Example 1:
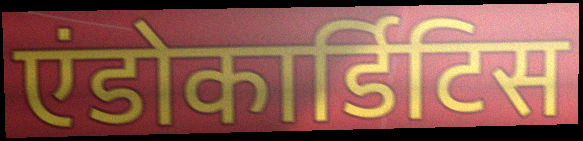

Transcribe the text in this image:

एंडोकार्डिटिस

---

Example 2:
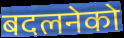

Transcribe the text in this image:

बदलनेको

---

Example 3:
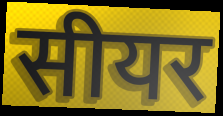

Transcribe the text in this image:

सीयर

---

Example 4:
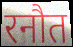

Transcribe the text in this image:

रनौत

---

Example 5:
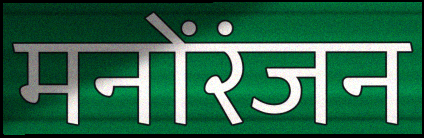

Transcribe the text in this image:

मनोंरंजन